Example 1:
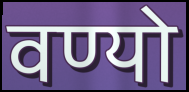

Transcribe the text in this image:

वण्यो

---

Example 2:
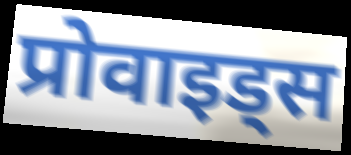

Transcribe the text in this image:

प्रोवाइड्स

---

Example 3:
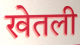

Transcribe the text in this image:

खेतली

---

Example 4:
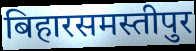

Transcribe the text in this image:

बिहारसमस्तीपुर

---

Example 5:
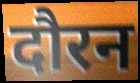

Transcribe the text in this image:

दौरन